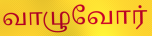
வாழுவோர்